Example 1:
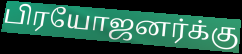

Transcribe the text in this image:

பிரயோஜனர்க்கு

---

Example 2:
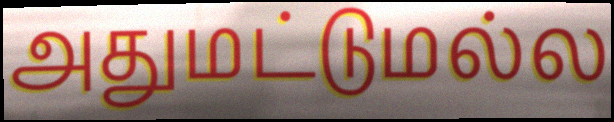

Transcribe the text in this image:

அதுமட்டுமல்ல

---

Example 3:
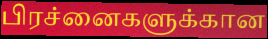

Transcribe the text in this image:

பிரச்னைகளுக்கான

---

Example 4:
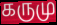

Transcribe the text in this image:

கருமு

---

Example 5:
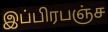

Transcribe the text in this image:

இப்பிரபஞ்ச